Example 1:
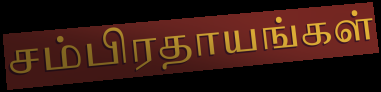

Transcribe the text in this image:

சம்பிரதாயங்கள்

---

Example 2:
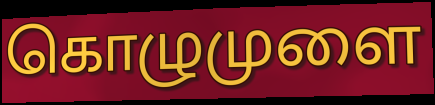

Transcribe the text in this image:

கொழுமுளை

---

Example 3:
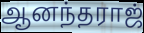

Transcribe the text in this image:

ஆனந்தராஜ்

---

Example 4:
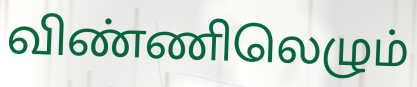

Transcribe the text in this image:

விண்ணிலெழும்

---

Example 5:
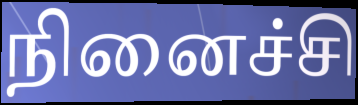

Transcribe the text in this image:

நினைச்சி